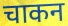
चाकन